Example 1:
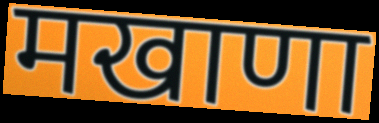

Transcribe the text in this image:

मखाणा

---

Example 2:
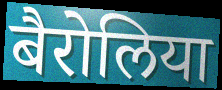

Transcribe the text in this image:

बैरोलिया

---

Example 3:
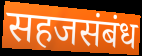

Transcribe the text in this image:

सहजसंबंध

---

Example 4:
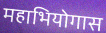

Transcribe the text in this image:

महाभियोगास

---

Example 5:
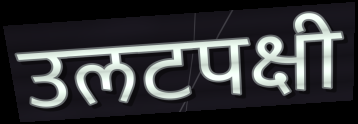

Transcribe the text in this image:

उलटपक्षी